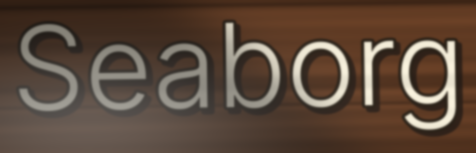
Seaborg